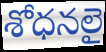
శోధనలై